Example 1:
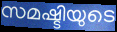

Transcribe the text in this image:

സമഷ്ടിയുടെ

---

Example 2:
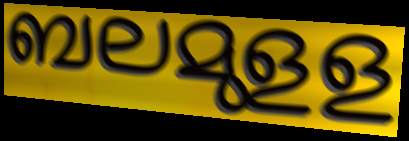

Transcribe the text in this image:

ബലമുളള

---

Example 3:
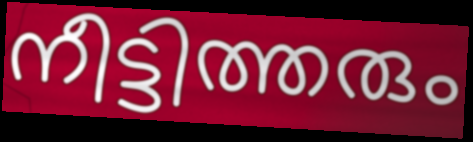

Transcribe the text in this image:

നീട്ടിത്തരും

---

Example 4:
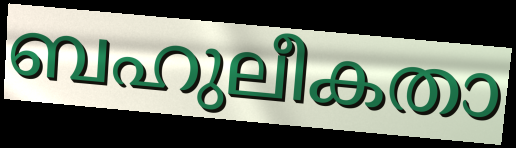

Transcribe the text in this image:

ബഹുലീകതാ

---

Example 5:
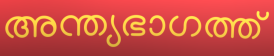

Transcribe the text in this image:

അന്ത്യഭാഗത്ത്